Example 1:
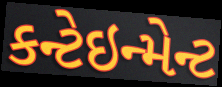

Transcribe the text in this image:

કન્ટેઇન્મેન્ટ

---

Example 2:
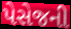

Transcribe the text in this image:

પેસેજની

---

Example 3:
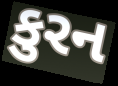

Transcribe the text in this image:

કુરન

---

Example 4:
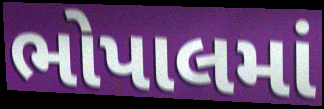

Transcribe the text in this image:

ભોપાલમાં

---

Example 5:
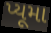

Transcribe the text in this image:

પ્યૂમા